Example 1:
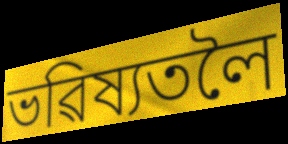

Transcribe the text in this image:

ভৱিষ্যতলৈ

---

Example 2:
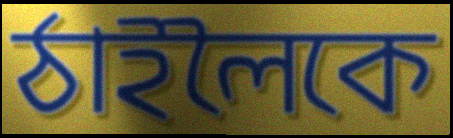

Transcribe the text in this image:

ঠাইলৈকে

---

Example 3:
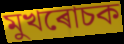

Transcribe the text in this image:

মুখৰোচক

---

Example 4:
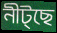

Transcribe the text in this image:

নীট্‌ছে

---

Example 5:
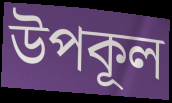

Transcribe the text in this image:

উপকূল